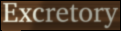
Excretory